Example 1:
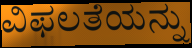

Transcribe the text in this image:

ವಿಫಲತೆಯನ್ನು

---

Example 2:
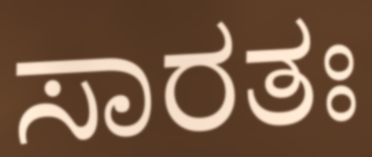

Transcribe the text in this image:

ಸಾರತಃ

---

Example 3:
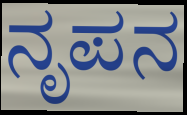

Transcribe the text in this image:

ನೃಪನ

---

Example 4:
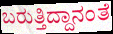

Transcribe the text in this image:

ಬರುತ್ತಿದ್ದಾನಂತೆ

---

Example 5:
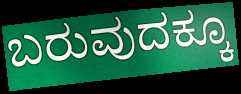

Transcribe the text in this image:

ಬರುವುದಕ್ಕೂ